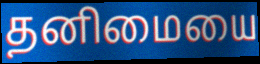
தனிமையை